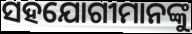
ସହଯୋଗୀମାନଙ୍କୁ